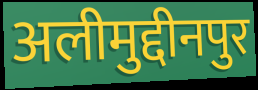
अलीमुद्दीनपुर